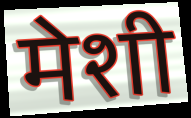
मेशी